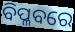
ବିପ୍ଳବରେ